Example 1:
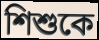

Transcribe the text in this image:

শিশুকে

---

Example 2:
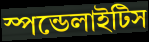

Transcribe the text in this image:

স্পন্ডেলাইটিস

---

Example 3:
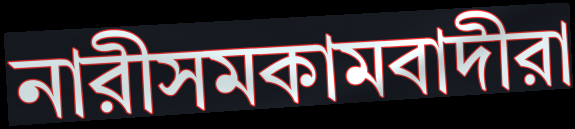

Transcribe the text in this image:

নারীসমকামবাদীরা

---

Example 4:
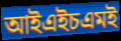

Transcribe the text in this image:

আইএইচএমই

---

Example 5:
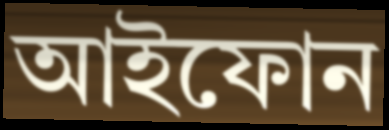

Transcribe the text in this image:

আইফোন